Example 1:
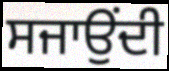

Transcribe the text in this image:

ਸਜਾਉਂਦੀ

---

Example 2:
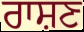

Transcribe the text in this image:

ਰਾਸ਼ਣ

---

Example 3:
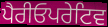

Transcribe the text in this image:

ਪੈਰੀਓਪਰੇਟਿਵ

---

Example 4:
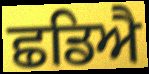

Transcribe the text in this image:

ਛਡਿਐ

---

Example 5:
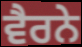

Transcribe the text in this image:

ਵੈਰਨੇ